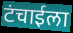
टंचाईला